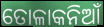
ତୋଳାକନିଆଁ